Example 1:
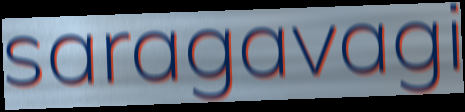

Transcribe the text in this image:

saragavagi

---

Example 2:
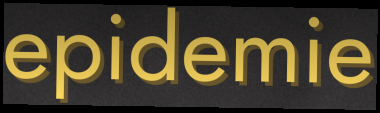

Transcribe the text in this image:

epidemie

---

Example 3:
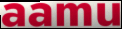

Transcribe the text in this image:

aamu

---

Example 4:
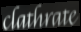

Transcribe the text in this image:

clathrate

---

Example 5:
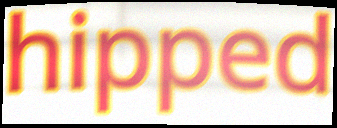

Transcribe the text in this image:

hipped